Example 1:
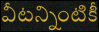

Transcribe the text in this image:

వీటన్నింటికీ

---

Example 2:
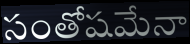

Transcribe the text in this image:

సంతోషమేనా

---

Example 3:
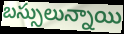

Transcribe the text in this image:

బస్సులున్నాయి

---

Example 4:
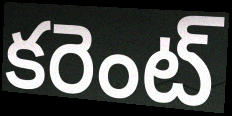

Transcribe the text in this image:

కరెంట్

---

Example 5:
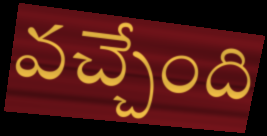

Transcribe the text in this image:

వచ్చేంది